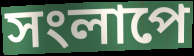
সংলাপে